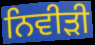
ਨਿਵੀੜੀ